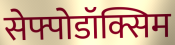
सेफ्पोडॉक्सिम